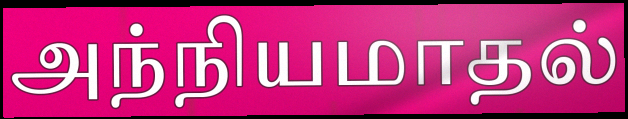
அந்நியமாதல்